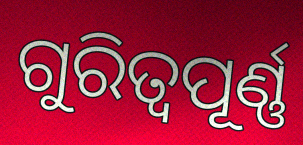
ଗୁରିତ୍ୱପୂର୍ଣ୍ଣ